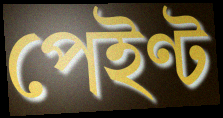
পেইণ্ট